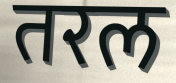
तरल